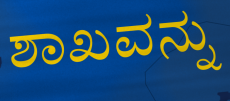
ಶಾಖವನ್ನು